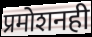
प्रमोशनही